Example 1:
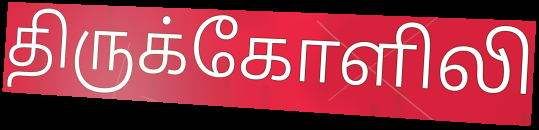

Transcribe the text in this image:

திருக்கோளிலி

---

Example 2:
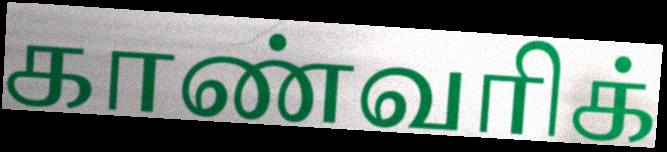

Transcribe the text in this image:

காண்வரிக்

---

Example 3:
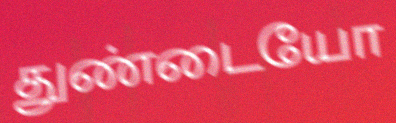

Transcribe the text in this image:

துண்டையோ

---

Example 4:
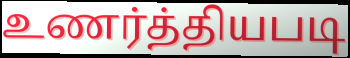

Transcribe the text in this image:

உணர்த்தியபடி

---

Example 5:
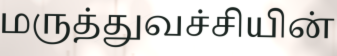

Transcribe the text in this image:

மருத்துவச்சியின்